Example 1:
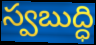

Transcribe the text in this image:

స్వబుద్ధి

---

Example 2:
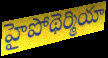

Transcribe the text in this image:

హైపోథెర్మియా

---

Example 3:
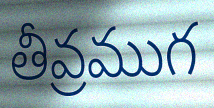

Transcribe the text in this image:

తీవ్రముగ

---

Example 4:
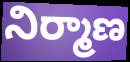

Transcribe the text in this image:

నిర్మాణ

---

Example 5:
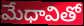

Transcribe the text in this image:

మేధావితో